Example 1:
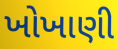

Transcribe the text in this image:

ખોખાણી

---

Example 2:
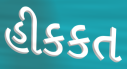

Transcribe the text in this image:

હીકકત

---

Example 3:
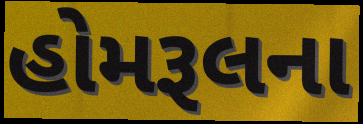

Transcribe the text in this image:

હોમરૂલના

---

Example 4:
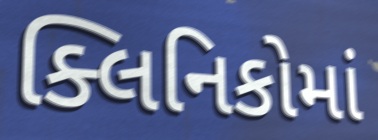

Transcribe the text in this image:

ક્લિનિકોમાં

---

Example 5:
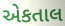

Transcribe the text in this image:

એકતાલ